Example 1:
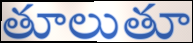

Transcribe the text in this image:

తూలుతూ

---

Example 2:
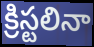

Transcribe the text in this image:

క్రిస్టలినా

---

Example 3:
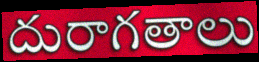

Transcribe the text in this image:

దురాగతాలు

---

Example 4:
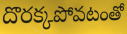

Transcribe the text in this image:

దొరక్కపోవటంతో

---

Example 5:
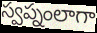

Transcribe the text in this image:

స్వప్నంలాగా